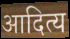
आदित्‍य